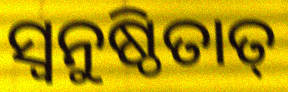
ସ୍ଵନୁଷ୍ଠିତାତ୍